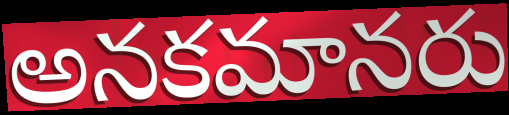
అనకమానరు